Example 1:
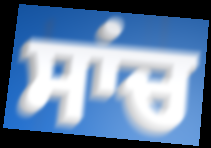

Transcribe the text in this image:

ਸਾਂਚ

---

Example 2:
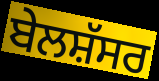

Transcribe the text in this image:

ਬੇਲਸ਼ੱਸਰ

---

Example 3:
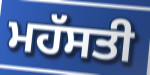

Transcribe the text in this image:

ਮਹੱਸਤੀ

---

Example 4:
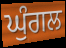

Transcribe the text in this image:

ਘੁੰਗਲ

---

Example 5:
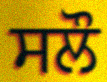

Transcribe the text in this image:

ਸਲੌ